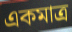
একমাত্র